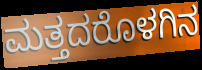
ಮತ್ತದರೊಳಗಿನ